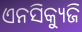
ଏନସିକ୍ୟୁଜି